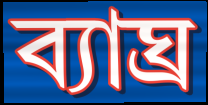
ব্যাঘ্ৰ